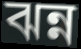
ঝন্ন